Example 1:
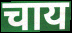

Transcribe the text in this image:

चाय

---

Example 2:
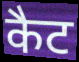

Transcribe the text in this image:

कैट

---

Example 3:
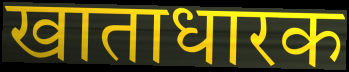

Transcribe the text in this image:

खाताधारक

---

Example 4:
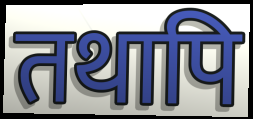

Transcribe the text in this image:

तथापि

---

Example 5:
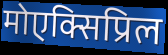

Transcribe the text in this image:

मोएक्सिप्रिल